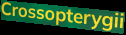
Crossopterygii